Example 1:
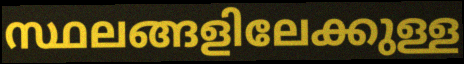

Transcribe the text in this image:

സ്ഥലങ്ങളിലേക്കുള്ള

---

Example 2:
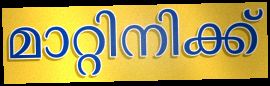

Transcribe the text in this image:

മാറ്റിനിക്ക്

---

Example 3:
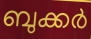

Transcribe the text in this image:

ബുക്കർ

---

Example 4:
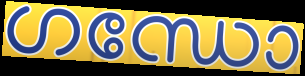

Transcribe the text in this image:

ഗന്ധോ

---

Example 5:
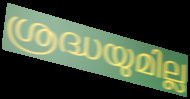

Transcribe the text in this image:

ശ്രദ്ധയുമില്ല